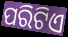
ପରିଟିଏ